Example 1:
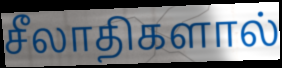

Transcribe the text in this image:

சீலாதிகளால்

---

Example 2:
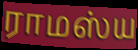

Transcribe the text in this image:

ராமஸ்ய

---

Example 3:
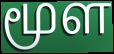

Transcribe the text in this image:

மூள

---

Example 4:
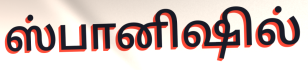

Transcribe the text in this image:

ஸ்பானிஷில்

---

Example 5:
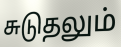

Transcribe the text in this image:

சுடுதலும்